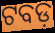
ଟବଡ଼